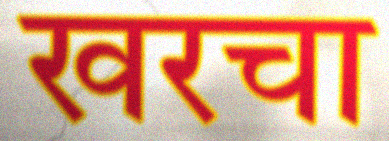
खरचा